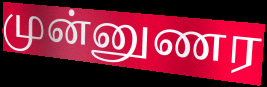
முன்னுணர